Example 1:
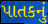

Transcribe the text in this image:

પાતકનું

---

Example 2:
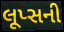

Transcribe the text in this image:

લૂપ્સની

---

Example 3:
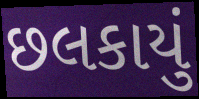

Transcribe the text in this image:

છલકાયું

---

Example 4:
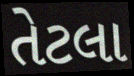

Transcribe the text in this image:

તેટલા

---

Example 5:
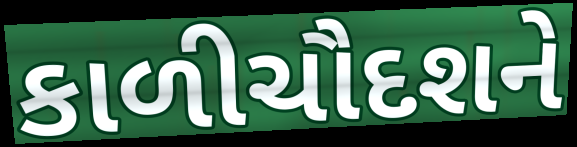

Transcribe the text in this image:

કાળીચૌદશને